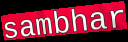
sambhar